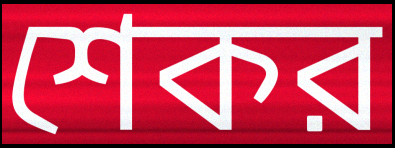
শেকর